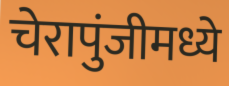
चेरापुंजीमध्ये